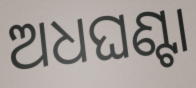
ଅଧଘଣ୍ଟା